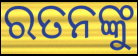
ରତନଙ୍କୁ